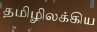
தமிழிலக்கிய